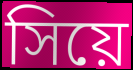
সিয়ে